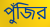
পুঁজির